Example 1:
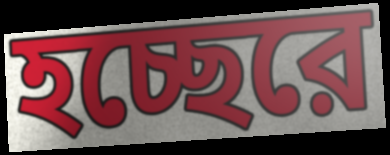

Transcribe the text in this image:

হচ্ছেরে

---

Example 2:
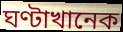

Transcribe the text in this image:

ঘণ্টাখানেক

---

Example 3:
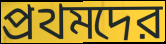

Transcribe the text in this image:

প্রথমদের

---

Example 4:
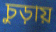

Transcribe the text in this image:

চুড়ায়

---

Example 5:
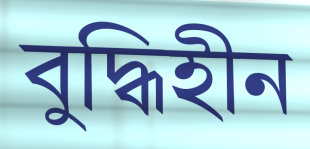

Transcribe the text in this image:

বুদ্ধিহীন